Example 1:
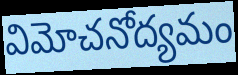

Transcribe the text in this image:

విమోచనోద్యమం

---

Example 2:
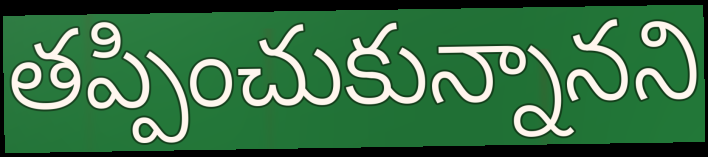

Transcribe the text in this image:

తప్పించుకున్నానని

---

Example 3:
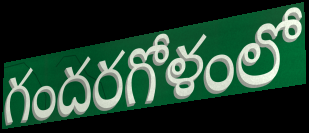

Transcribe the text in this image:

గందరగోళంలో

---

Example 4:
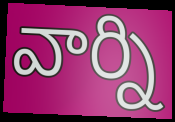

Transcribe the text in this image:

వార్ని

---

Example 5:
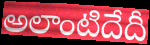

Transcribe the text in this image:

అలాంటిదేదీ